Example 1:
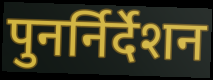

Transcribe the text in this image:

पुनर्निर्देशन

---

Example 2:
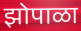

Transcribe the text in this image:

झोपाळा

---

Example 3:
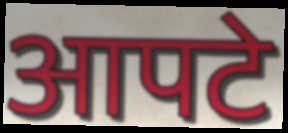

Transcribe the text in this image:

आपटे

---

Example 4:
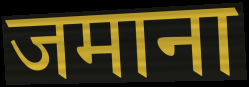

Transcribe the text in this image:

जमाना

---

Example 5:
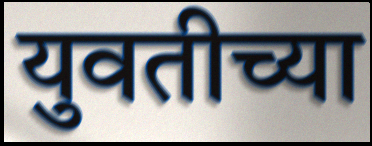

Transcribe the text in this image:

युवतीच्या